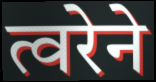
त्वरेने